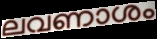
ലവണാശം